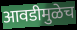
आवडीमुळेच